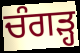
ਚੰਗੜ੍ਹ